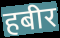
हबीर